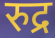
रुद्र